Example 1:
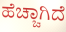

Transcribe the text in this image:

ಹೆಚ್ಚಾಗಿದೆ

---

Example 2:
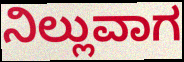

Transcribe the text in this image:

ನಿಲ್ಲುವಾಗ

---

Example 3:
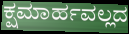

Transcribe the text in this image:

ಕ್ಷಮಾರ್ಹವಲ್ಲದ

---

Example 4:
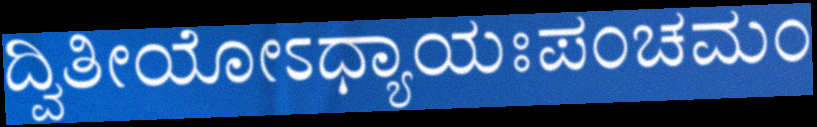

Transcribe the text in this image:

ದ್ವಿತೀಯೋಽಧ್ಯಾಯಃಪಂಚಮಂ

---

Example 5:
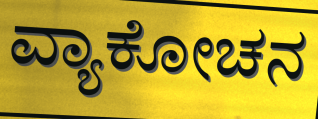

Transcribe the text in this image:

ವ್ಯಾಕೋಚನ